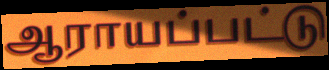
ஆராயப்பட்டு